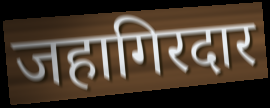
जहागिरदार